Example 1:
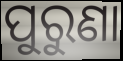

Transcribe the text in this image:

ପୁରୁଣା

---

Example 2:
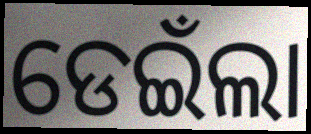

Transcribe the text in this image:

ଡେଇଁଲା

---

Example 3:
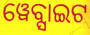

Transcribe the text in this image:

ୱେବ୍ସାଇଟ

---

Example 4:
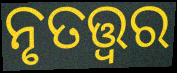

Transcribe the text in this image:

ନୃତତ୍ତ୍ଵର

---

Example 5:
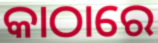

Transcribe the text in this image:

କାଠାରେ